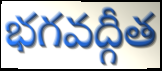
భగవద్గీత